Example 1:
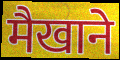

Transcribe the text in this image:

मैखाने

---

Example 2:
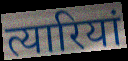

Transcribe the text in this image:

त्यारियां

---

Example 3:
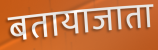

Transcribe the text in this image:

बतायाजाता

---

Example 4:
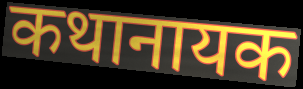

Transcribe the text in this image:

कथानायक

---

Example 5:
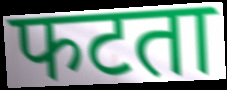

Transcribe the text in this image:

फटता